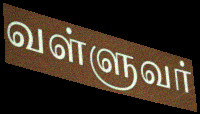
வள்ளுவர்